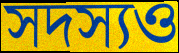
সদস্যও